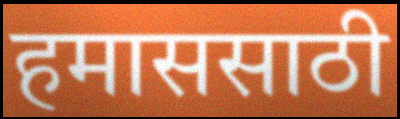
हमाससाठी